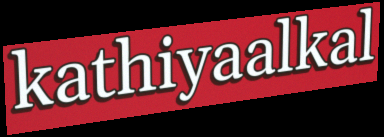
kathiyaalkal